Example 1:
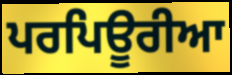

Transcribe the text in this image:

ਪਰਪਿਊਰੀਆ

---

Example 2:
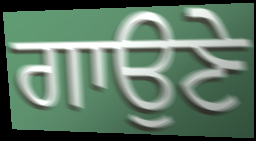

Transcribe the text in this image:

ਗਾਉਣੇ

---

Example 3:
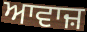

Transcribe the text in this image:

ਆਵਾਜ਼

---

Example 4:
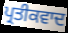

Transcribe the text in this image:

ਪ੍ਰਤੀਕਵਾਦ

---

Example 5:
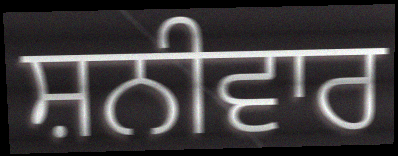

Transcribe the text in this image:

ਸ਼ਨੀਵਾਰ